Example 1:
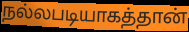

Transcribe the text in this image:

நல்லபடியாகத்தான்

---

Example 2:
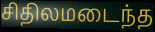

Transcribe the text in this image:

சிதிலமடைந்த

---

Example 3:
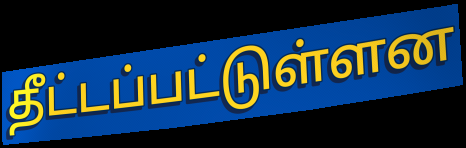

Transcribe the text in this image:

தீட்டப்பட்டுள்ளன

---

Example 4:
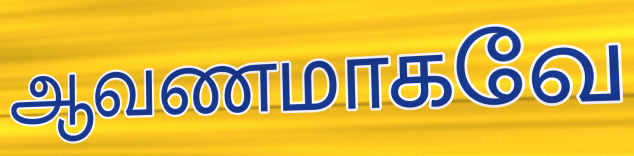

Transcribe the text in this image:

ஆவணமாகவே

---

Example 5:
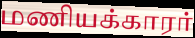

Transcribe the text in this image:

மணியக்காரர்